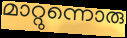
മാറ്റുന്നൊരു